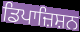
ਡਿਪਾਜ਼ਿਸ਼ਨ